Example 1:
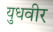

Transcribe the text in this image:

युधवीर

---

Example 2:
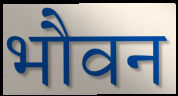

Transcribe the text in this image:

भौवन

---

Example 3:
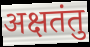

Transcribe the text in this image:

अक्षतंतु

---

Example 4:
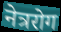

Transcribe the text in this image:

नेत्ररोग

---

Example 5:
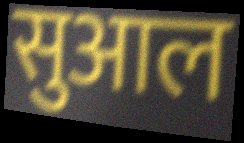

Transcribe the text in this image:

सुआल